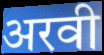
अरवी